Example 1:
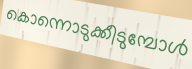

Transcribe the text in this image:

കൊന്നൊടുക്കീടുമ്പോൾ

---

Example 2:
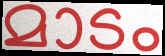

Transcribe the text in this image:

മാടം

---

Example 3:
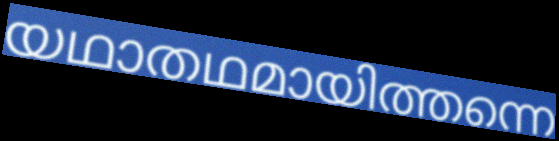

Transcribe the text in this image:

യഥാതഥമായിത്തന്നെ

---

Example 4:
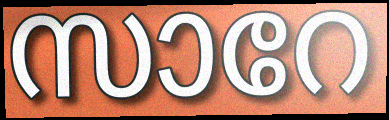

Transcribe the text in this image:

സാറേ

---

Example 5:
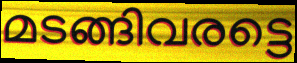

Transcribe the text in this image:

മടങ്ങിവരട്ടെ